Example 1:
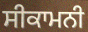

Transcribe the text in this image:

ਸੀਕਾਮਨੀ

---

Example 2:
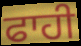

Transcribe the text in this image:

ਫਾਹੀ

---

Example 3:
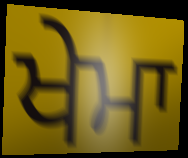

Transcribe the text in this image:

ਖੇਮਾ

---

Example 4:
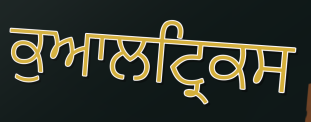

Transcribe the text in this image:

ਕੁਆਲਟ੍ਰਿਕਸ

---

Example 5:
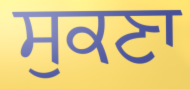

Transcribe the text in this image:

ਸੁਕਣਾ